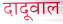
दादूवाल